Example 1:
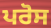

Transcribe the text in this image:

ਪਰੋਸ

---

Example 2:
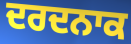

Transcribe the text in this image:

ਦਰਦਨਾਕ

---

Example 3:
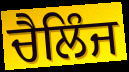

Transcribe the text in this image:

ਚੈਲਿੰਜ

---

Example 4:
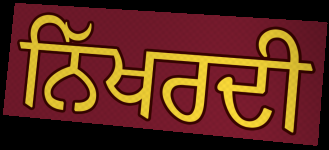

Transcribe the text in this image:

ਨਿੱਖਰਦੀ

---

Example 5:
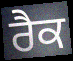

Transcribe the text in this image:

ਰੈਕ